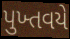
પુખ્તવયે